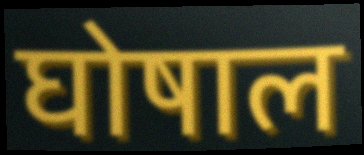
घोषाल